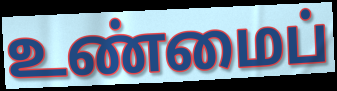
உண்மைப்